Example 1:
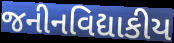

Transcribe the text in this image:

જનીનવિદ્યાકીય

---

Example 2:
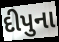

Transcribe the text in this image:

દીપુના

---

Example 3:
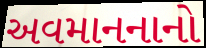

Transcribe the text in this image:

અવમાનનાનો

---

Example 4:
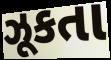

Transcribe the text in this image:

ઝૂકતા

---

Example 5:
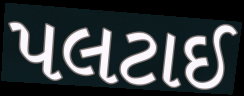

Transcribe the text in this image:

પલટાઈ